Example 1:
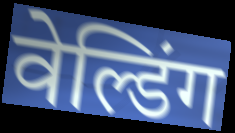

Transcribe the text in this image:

वेल्डिंग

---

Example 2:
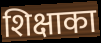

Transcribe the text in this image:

शिक्षाका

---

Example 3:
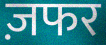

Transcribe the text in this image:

ज़फर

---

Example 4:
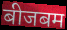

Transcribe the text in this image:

बीजबम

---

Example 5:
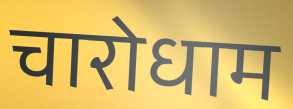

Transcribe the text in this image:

चारोधाम